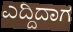
ಎದ್ದಿದಾಗ